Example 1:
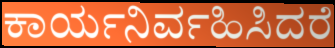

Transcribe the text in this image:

ಕಾರ್ಯನಿರ್ವಹಿಸಿದರೆ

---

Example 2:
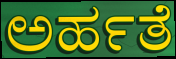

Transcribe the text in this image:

ಅರ್ಹತೆ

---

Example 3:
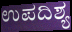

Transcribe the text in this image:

ಉಪದಿಶ್ಯ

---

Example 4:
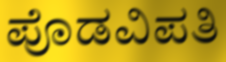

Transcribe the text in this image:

ಪೊಡವಿಪತಿ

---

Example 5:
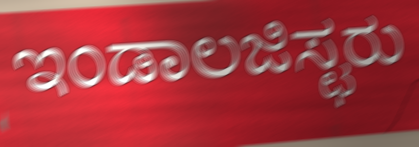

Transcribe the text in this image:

ಇಂಡಾಲಜಿಸ್ಟರು